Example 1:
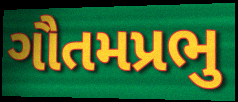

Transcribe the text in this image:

ગૌતમપ્રભુ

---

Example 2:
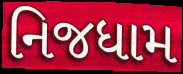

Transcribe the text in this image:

નિજધામ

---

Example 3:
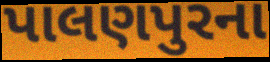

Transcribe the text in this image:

પાલણપુરના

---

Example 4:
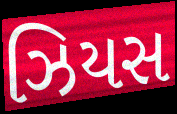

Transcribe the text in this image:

ઝિયસ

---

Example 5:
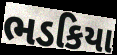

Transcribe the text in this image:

ભડકિયા